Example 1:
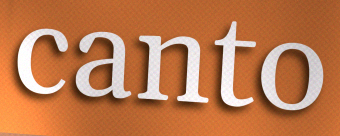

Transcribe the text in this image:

canto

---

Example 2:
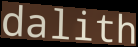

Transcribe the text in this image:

dalith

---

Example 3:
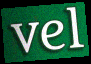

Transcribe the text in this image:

vel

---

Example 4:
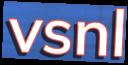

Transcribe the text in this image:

vsnl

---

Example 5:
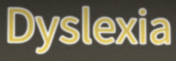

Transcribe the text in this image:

Dyslexia